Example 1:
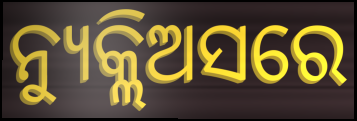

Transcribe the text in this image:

ନ୍ୟୁକ୍ଲିଅସରେ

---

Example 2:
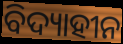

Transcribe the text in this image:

ବିଦ୍ୟାହୀନ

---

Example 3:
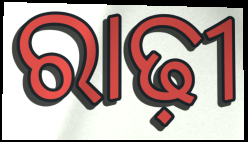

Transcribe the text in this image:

ରାଢ଼ୀ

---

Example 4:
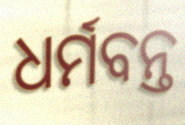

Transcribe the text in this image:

ଧର୍ମବନ୍ତ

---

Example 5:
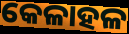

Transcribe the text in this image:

କେଳାହଳ